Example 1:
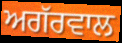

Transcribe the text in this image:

ਅਗੱਰਵਾਲ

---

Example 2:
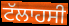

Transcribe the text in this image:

ਟੱਲਾਹਸੀ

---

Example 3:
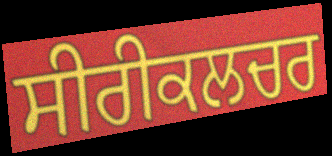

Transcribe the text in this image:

ਸੀਰੀਕਲਚਰ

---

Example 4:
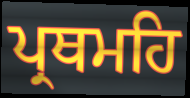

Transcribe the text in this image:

ਪ੍ਰਥਮਹਿ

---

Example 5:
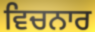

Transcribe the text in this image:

ਵਿਚਨਾਰ